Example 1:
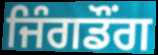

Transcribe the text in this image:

ਜਿੰਗਡੌਂਗ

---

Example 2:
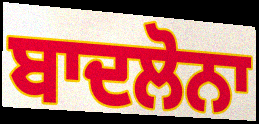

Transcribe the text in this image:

ਬਾਦਲੋਨਾ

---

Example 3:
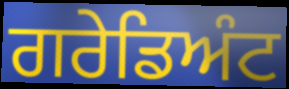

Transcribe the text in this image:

ਗਰੇਡਿਅੰਟ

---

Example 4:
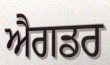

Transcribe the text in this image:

ਐਗਡਰ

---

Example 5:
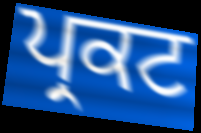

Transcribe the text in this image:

ਪ੍ਰਕਟ